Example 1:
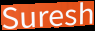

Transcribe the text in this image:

Suresh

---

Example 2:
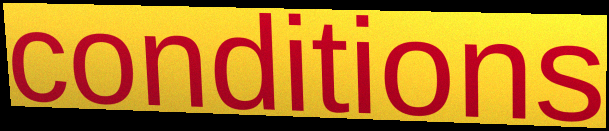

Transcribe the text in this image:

conditions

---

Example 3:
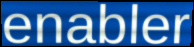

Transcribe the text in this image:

enabler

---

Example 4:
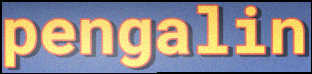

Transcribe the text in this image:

pengalin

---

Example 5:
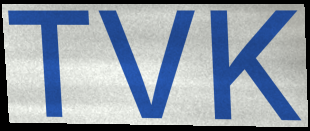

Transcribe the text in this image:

TVK